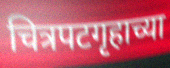
चित्रपटगृहाच्या